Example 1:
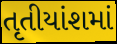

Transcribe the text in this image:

તૃતીયાંશમાં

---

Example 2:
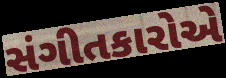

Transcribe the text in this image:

સંગીતકારોએ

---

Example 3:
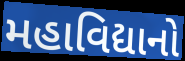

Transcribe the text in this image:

મહાવિદ્યાનો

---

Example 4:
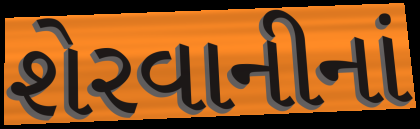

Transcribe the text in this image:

શેરવાનીનાં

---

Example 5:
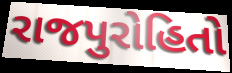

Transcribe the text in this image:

રાજપુરોહિતો